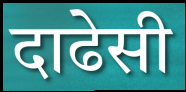
दाढेसी